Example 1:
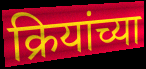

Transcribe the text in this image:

क्रियांच्या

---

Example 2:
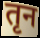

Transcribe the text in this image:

तृन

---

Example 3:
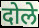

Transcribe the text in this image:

दोले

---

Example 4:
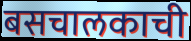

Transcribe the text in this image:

बसचालकाची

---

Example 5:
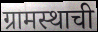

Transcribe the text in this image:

ग्रामस्थाची